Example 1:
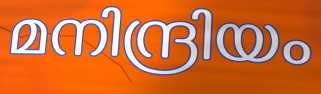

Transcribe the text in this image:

മനിന്ദ്രിയം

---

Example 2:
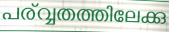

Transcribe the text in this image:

പര്വ്വതത്തിലേക്കു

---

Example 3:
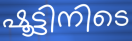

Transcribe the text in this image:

ഷൂട്ടിനിടെ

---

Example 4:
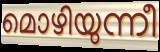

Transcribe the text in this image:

മൊഴിയുന്നീ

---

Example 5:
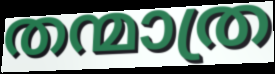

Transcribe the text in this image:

തന്മാത്ര